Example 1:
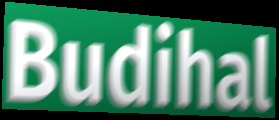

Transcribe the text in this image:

Budihal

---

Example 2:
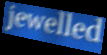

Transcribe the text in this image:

jewelled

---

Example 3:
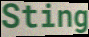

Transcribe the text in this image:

Sting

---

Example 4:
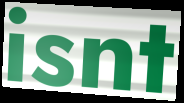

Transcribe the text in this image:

isnt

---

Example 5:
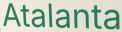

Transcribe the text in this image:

Atalanta